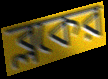
ব্লকের